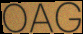
OAG